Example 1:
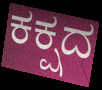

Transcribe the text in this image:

ಕಕ್ಷದ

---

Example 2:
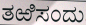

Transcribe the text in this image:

ತಱಿಸಂದು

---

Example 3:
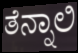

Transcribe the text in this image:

ತೆನ್ನಾಲಿ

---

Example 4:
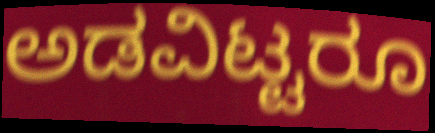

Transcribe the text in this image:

ಅಡವಿಟ್ಟರೂ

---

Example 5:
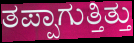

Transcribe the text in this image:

ತಪ್ಪಾಗುತ್ತಿತ್ತು